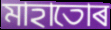
মাহাতোৰ